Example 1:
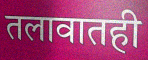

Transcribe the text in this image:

तलावातही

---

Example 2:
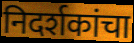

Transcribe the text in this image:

निदर्शकांचा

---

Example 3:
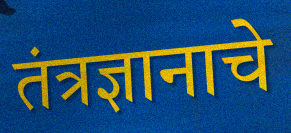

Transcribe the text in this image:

तंत्रज्ञानाचे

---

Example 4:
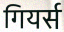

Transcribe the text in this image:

गियर्स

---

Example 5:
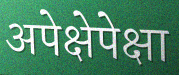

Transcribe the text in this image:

अपेक्षेपेक्षा